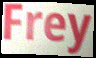
Frey